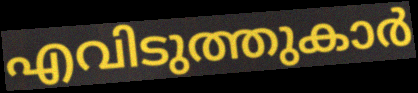
എവിടുത്തുകാർ